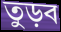
তুড়ব